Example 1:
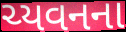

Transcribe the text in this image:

ચ્યવનના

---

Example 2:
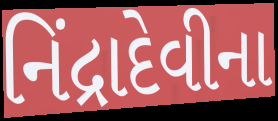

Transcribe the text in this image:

નિંદ્રાદેવીના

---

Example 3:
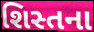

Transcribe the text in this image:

શિસ્તના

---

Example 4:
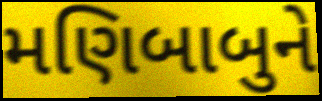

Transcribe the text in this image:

મણિબાબુને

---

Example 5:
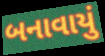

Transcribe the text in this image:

બનાવાયું